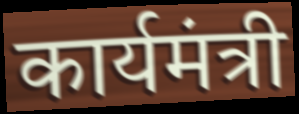
कार्यमंत्री